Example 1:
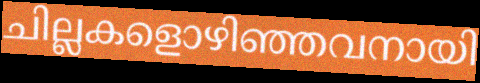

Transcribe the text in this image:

ചില്ലകളൊഴിഞ്ഞവനായി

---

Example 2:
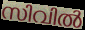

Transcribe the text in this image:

സിവിൽ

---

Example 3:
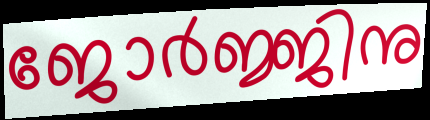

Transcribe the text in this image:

ജോർജ്ജിനു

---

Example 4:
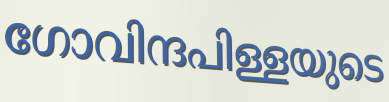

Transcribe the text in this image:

ഗോവിന്ദപിള്ളയുടെ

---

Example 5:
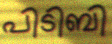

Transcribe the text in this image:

പിടിബി